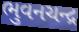
ભુવનચન્દ્ર